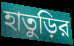
হাতুড়ির